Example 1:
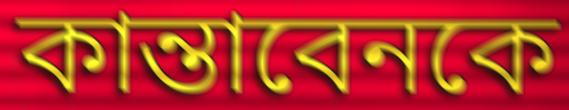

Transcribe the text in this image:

কান্তাবেনকে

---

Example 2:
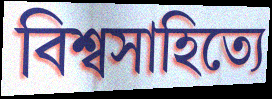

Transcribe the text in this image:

বিশ্বসাহিত্যে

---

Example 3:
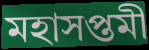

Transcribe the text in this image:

মহাসপ্তমী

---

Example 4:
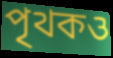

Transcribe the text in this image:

পৃথকও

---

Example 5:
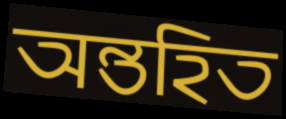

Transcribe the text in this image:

অন্তহিত